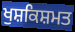
ਖੁਸ਼ਕਿਸ਼ਮਤ